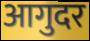
आगुदर